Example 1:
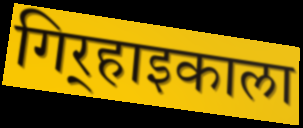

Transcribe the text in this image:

गिर्हाइकाला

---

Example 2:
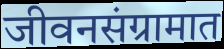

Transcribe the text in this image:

जीवनसंग्रामात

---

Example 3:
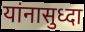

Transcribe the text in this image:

यांनासुध्दा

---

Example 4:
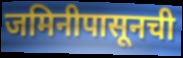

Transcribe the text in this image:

जमिनीपासूनची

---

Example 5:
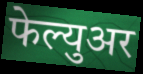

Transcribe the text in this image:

फेल्युअर